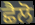
ਛੈਲੋ